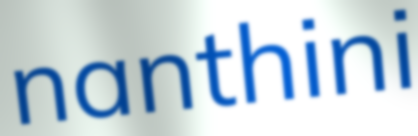
nanthini